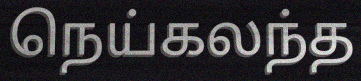
நெய்கலந்த